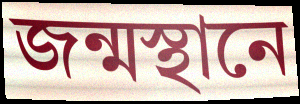
জন্মস্থানে